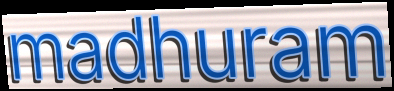
madhuram